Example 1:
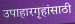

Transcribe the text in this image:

उपाहारगृहांसाठी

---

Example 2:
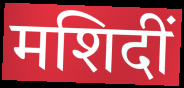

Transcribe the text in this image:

मशिदीं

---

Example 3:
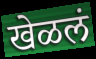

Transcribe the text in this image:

खेळलं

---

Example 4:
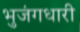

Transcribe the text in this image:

भुजंगधारी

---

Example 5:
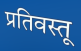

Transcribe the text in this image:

प्रतिवस्तू